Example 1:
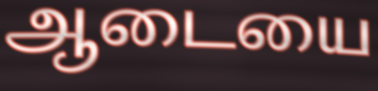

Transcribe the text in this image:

ஆடையை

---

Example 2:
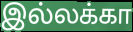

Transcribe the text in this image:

இல்லக்கா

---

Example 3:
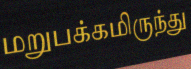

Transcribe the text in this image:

மறுபக்கமிருந்து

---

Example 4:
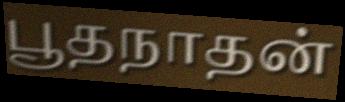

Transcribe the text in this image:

பூதநாதன்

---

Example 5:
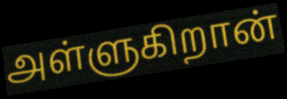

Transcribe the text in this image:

அள்ளுகிறான்